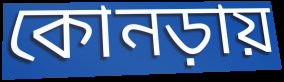
কোনড়ায়